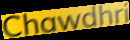
Chawdhri